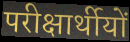
परीक्षार्थीयों